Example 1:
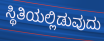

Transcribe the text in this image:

ಸ್ಥಿತಿಯಲ್ಲಿಡುವುದು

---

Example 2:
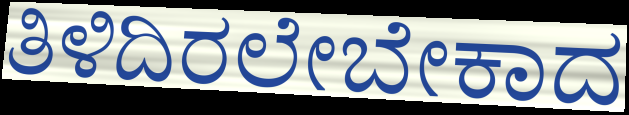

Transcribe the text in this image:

ತಿಳಿದಿರಲೇಬೇಕಾದ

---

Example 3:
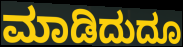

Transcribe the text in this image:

ಮಾಡಿದುದೂ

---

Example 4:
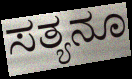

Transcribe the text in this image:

ಸತ್ಯನೂ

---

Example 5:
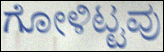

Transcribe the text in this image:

ಗೋಳಿಟ್ಟವು